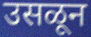
उसळून